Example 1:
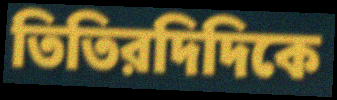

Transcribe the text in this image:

তিতিরদিদিকে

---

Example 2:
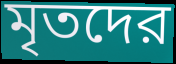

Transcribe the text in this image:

মৃতদের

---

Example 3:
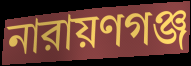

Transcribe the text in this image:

নারায়ণগঞ্জ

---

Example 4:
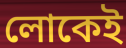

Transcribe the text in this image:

লোকেই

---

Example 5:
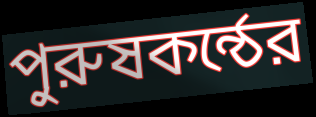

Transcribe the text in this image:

পুরুষকন্ঠের